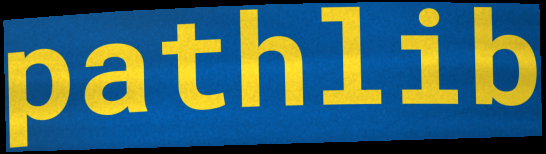
pathlib